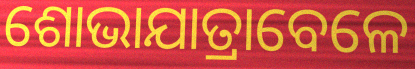
ଶୋଭାଯାତ୍ରାବେଳେ